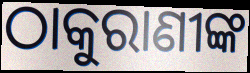
ଠାକୁରାଣୀଙ୍କ